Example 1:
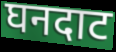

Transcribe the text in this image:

घनदाट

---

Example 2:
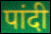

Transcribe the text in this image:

पांदी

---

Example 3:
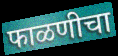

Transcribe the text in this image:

फाळणीचा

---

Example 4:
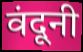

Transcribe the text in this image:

वंदूनी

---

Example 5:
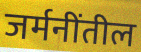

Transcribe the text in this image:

जर्मनींतील